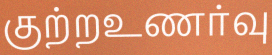
குற்றஉணர்வு